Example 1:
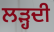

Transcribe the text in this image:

ਲੜ੍ਹਦੀ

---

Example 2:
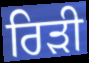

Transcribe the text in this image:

ਰਿੜੀ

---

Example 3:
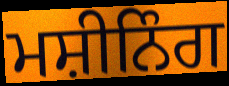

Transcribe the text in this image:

ਮਸ਼ੀਨਿੰਗ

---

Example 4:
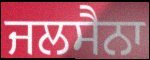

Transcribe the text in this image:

ਜਲਸੈਨਾ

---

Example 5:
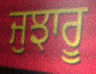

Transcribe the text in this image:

ਜੁਝਾਰੂ